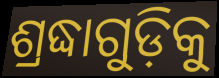
ଶ୍ରଦ୍ଧାଗୁଡ଼ିକୁ